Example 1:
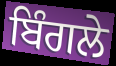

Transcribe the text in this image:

ਬਿੰਗਲੇ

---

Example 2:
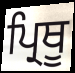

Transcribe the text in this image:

ਪ੍ਰਿਥੂ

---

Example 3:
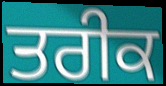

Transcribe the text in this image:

ਤਰੀਕ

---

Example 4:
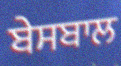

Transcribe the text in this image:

ਬੇਸਬਾਲ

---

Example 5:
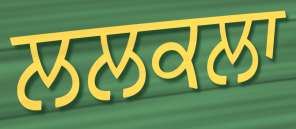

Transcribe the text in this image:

ਲਲਕਲਾ